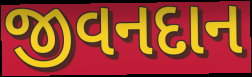
જીવનદાન